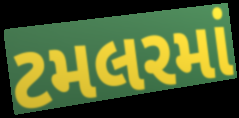
ટમલરમાં